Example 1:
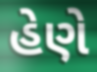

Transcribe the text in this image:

હેણે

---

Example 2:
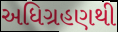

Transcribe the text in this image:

અધિગ્રહણથી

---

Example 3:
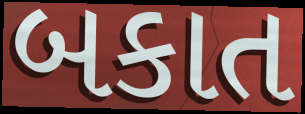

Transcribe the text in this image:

બકાત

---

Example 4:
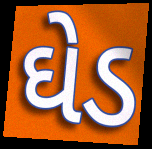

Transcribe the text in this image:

ઘેડ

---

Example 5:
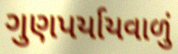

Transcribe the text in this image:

ગુણપર્યાયવાળું